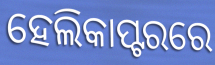
ହେଲିକାପ୍ଟରରେ